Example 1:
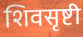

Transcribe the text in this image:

शिवसृष्टी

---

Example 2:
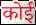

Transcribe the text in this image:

कोई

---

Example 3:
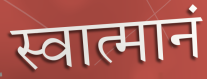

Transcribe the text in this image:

स्वात्मानं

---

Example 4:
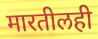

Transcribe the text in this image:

मारतीलही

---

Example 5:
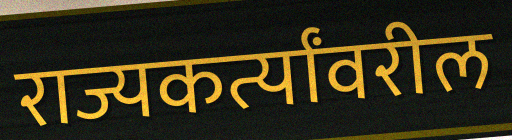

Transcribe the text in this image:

राज्यकर्त्यांवरील